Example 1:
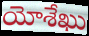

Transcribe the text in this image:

యోశేఖు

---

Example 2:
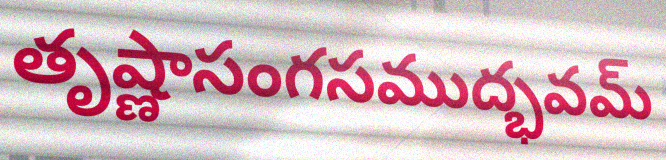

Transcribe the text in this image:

తృష్ణాసంగసముద్భవమ్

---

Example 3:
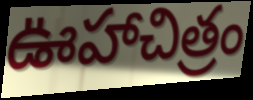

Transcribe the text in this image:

ఊహాచిత్రం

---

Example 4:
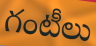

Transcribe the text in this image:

గంటీలు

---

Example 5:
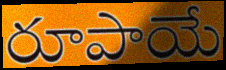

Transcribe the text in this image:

రూపాయే